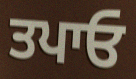
ਤਪਾਓ